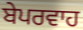
ਬੇਪਰਵਾਹ